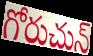
గోరుచున్